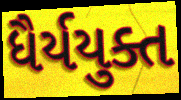
ધૈર્યયુક્ત